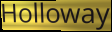
Holloway